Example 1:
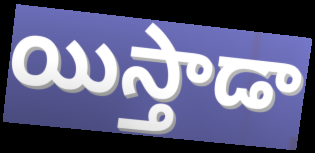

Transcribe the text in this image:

యిస్తాడా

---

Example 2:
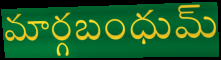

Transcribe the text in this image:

మార్గబంధుమ్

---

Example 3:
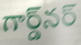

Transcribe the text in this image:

గార్డ్‌నర్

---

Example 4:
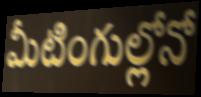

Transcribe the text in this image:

మీటింగుల్లోనో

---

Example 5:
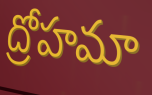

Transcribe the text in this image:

ద్రోహమా